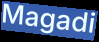
Magadi